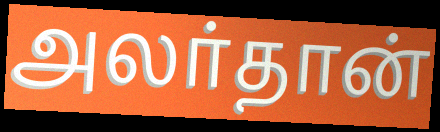
அலர்தான்